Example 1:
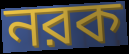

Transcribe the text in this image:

নরক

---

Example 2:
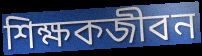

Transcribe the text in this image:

শিক্ষকজীবন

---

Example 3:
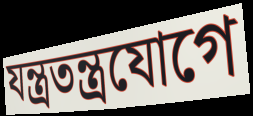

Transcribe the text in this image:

যন্ত্রতন্ত্রযোগে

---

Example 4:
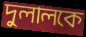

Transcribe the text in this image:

দুলালকে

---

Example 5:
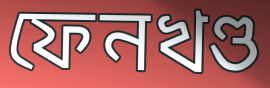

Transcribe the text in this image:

ফেনখণ্ড